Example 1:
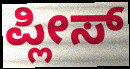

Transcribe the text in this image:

ಪ್ಲೀಸ್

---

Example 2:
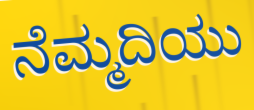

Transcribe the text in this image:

ನೆಮ್ಮದಿಯು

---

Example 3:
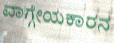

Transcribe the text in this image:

ವಾಗ್ಗೇಯಕಾರನ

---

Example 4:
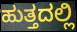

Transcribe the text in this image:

ಹುತ್ತದಲ್ಲಿ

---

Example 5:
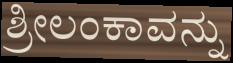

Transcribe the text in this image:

ಶ್ರೀಲಂಕಾವನ್ನು